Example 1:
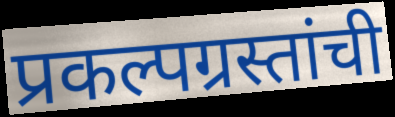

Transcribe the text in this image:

प्रकल्पग्रस्तांची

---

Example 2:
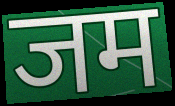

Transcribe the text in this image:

जम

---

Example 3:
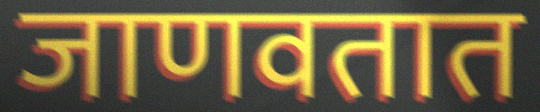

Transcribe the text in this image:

जाणवतात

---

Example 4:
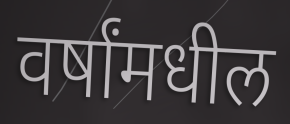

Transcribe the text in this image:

वर्षांमधील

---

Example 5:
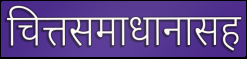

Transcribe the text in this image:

चित्तसमाधानासह